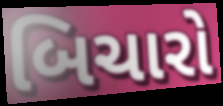
બિચારો